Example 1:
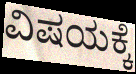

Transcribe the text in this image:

ವಿಷಯಕ್ಕೆ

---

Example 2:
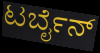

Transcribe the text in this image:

ಟರ್ಬೈನ್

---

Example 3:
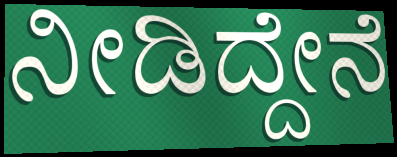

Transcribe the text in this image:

ನೀಡಿದ್ದೇನೆ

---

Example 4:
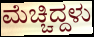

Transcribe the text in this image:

ಮೆಚ್ಚಿದ್ದಳು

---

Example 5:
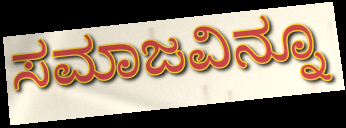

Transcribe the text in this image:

ಸಮಾಜವಿನ್ನೂ